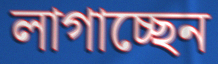
লাগাচ্ছেন